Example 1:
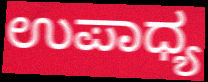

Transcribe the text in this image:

ಉಪಾಧ್ಯ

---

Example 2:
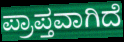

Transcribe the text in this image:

ಪ್ರಾಪ್ತವಾಗಿದೆ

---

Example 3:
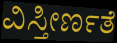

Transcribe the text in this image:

ವಿಸ್ತೀರ್ಣತೆ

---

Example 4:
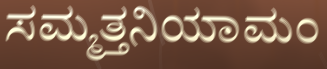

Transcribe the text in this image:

ಸಮ್ಮತ್ತನಿಯಾಮಂ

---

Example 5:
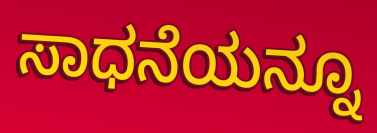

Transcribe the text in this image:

ಸಾಧನೆಯನ್ನೂ